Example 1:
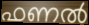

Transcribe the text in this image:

ഫണൽ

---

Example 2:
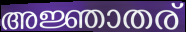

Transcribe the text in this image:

അജ്ഞാതര്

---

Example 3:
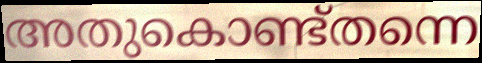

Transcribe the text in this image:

അതുകൊണ്ട്തന്നെ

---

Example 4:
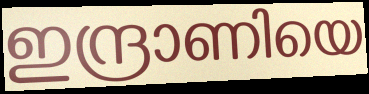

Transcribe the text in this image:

ഇന്ദ്രാണിയെ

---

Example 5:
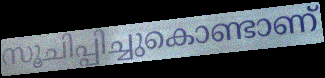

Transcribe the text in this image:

സൂചിപ്പിച്ചുകൊണ്ടാണ്